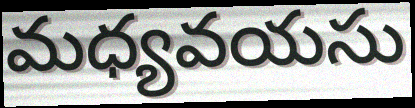
మధ్యవయసు